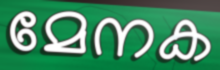
മേനക